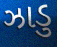
ઝાડુ